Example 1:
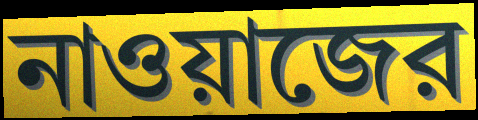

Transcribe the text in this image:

নাওয়াজের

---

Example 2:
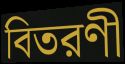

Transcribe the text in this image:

বিতরণী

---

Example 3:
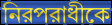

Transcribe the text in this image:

নিরপরাধীকে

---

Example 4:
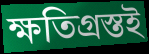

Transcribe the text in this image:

ক্ষতিগ্রস্তই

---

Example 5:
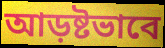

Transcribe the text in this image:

আড়ষ্টভাবে